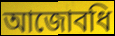
আজোবধি